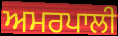
ਅਮਰਪਾਲੀ